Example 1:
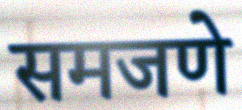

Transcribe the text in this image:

समजणे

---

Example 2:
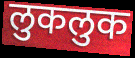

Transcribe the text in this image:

लुकलुक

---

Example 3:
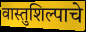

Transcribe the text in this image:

वास्तुशिल्पाचे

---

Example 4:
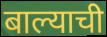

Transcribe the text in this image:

बाल्याची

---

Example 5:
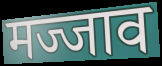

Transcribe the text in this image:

मज्जाव